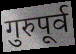
गुरुपूर्व